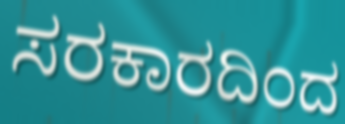
ಸರಕಾರದಿಂದ